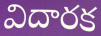
విదారక